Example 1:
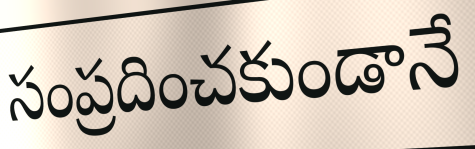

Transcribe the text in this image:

సంప్రదించకుండానే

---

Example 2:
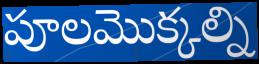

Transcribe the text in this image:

పూలమొక్కల్ని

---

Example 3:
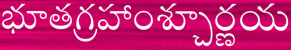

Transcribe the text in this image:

భూతగ్రహాంశ్చూర్ణయ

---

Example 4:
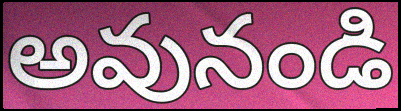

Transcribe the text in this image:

అవునండి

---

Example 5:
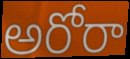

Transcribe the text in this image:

అరోరా